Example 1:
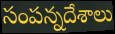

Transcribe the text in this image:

సంపన్నదేశాలు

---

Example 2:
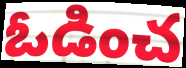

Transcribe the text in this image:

ఓడించ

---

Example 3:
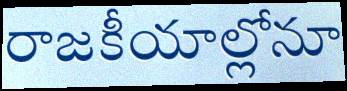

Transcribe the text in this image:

రాజకీయాల్లోనూ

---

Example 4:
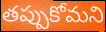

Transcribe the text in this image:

తప్పుకోమని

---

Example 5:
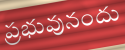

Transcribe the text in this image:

ప్రభువునందు